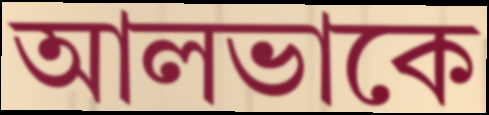
আলভাকে